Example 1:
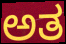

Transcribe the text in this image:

ಅತ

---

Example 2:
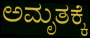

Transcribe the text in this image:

ಅಮೃತಕ್ಕೆ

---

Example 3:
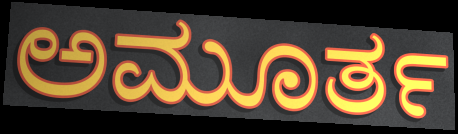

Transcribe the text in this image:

ಅಮೂರ್ತ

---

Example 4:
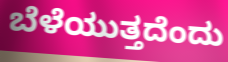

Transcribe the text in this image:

ಬೆಳೆಯುತ್ತದೆಂದು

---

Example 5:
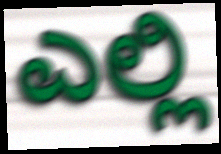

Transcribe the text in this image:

ಎಲ್ಲಿ